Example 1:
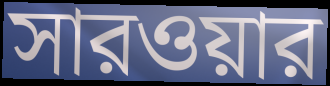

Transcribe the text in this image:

সারওয়ার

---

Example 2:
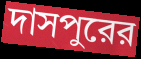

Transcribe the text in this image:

দাসপুরের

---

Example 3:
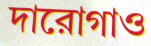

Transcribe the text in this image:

দারোগাও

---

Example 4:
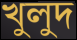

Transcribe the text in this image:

খুলুদ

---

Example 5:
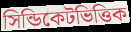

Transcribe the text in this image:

সিন্ডিকেটভিত্তিক